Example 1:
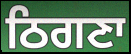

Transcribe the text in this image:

ਠਿਗਣਾ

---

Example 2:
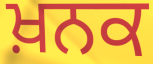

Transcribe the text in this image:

ਖ਼ਨਕ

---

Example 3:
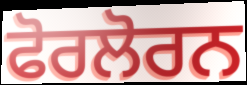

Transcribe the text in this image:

ਫੋਰਲੋਰਨ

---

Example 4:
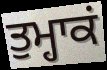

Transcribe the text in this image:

ਤੁਮ੍ਹਾਕਂ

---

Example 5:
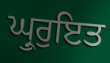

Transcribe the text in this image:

ਘ੍ਰੁਰੁਇਤ